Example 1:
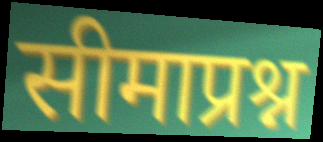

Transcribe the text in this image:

सीमाप्रश्न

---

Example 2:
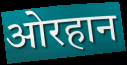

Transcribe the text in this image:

ओरहान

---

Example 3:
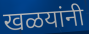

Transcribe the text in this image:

खळयांनी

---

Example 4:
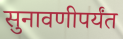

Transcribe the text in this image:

सुनावणीपर्यंत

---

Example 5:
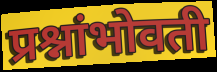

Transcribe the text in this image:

प्रश्नांभोवती